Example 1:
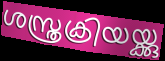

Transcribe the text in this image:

ശസ്ത്രക്രിയയ്ക്കു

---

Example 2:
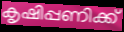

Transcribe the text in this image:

കൃഷിപ്പണിക്ക്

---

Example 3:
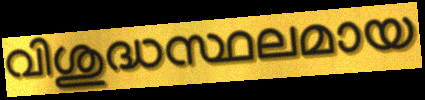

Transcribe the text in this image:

വിശുദ്ധസ്ഥലമായ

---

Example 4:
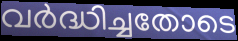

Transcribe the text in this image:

വർദ്ധിച്ചതോടെ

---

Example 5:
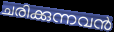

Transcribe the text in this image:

ചരിക്കുന്നവൻ